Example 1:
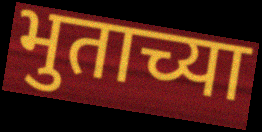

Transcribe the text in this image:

भुताच्या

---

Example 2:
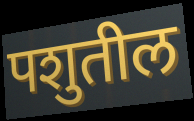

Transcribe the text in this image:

पशुतील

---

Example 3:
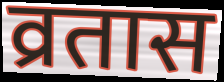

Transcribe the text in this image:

व्रतास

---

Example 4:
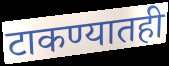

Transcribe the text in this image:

टाकण्यातही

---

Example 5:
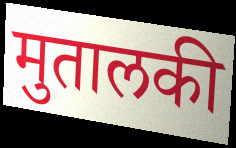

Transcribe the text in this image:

मुतालकी